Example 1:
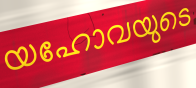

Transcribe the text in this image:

യഹോവയുടെ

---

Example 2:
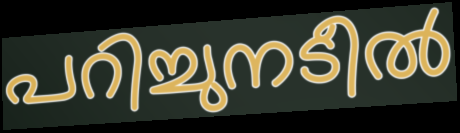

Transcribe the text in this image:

പറിച്ചുനടീൽ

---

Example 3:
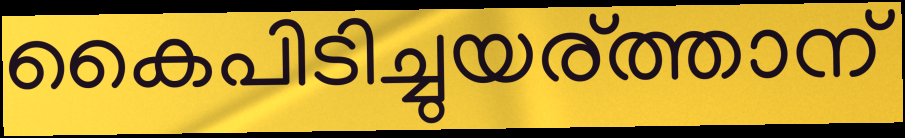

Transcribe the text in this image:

കൈപിടിച്ചുയര്ത്താന്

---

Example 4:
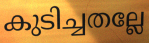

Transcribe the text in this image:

കുടിച്ചതല്ലേ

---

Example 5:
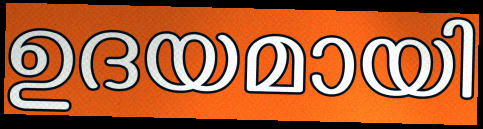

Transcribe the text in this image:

ഉദയമായി